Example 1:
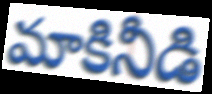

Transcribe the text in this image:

మాకినీడి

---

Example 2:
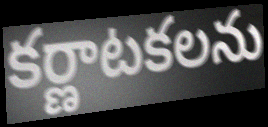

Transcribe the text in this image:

కర్ణాటకలను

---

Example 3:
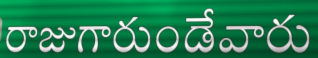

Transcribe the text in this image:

రాజుగారుండేవారు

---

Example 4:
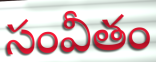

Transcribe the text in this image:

సంవీతం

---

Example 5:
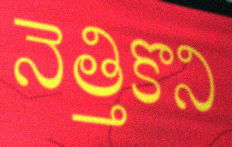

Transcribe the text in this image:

నెత్తికొని